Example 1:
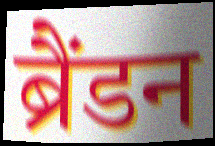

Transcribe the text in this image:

ब्रैंडन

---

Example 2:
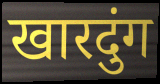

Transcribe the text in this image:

खारदुंग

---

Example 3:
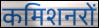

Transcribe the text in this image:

कमिशनरों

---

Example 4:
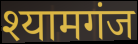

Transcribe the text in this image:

श्यामगंज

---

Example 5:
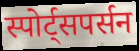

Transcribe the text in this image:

स्पोर्ट्सपर्सन